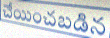
చేయించబడిన